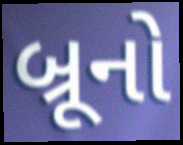
બ્રૂનો